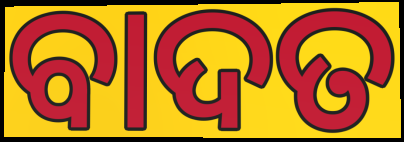
ବାଦତ